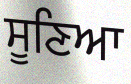
ਸੂਣਿਆ